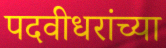
पदवीधरांच्या